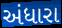
અંધારા